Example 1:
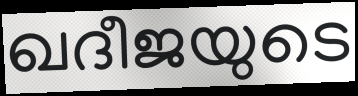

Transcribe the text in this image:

ഖദീജയുടെ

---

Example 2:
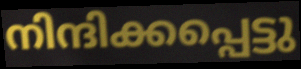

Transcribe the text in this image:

നിന്ദിക്കപ്പെട്ടു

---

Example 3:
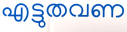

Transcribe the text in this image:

എട്ടുതവണ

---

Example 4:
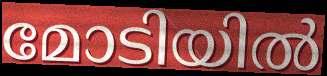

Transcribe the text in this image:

മോടിയിൽ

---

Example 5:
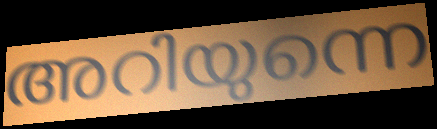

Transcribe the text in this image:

അറിയുന്നെ